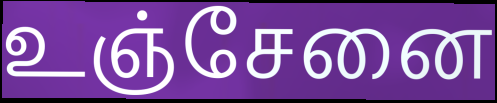
உஞ்சேனை